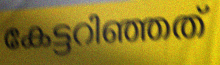
കേട്ടറിഞ്ഞത്